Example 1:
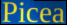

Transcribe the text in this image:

Picea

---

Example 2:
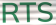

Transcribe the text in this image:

RTS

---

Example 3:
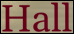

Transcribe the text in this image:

Hall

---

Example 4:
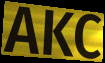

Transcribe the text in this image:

AKC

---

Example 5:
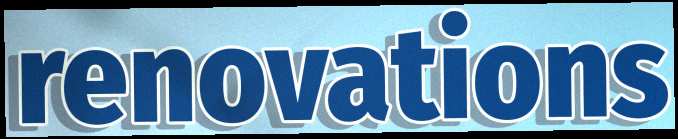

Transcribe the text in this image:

renovations